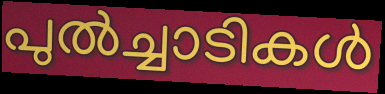
പുൽച്ചാടികൾ